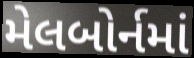
મેલબોર્નમાં